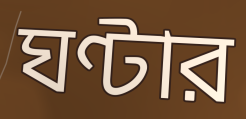
ঘণ্টার